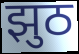
झुठ